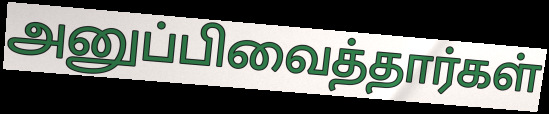
அனுப்பிவைத்தார்கள்